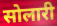
सोलारी